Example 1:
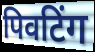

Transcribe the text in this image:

पिवटिंग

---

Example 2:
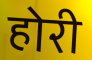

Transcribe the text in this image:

होरी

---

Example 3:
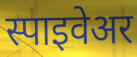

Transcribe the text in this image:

स्पाइवेअर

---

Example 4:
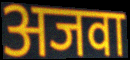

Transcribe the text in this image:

अजवा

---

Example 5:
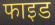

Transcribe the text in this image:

फाइड